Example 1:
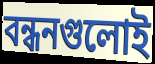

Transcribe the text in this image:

বন্ধনগুলোই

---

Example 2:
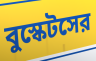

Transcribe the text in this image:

বুস্কেটসের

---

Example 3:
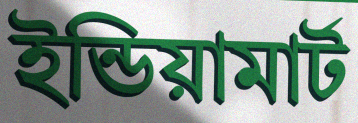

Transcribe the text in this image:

ইন্ডিয়ামার্ট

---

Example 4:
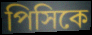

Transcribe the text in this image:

পিসিকে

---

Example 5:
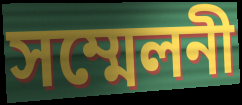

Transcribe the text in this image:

সম্মেলনী